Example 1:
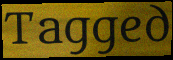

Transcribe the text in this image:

Tagged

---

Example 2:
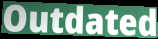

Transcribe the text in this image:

Outdated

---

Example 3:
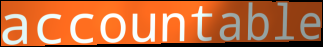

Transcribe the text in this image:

accountable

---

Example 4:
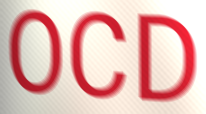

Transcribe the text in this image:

OCD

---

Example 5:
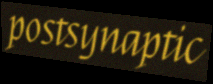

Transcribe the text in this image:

postsynaptic